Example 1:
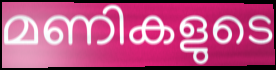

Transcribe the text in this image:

മണികളുടെ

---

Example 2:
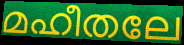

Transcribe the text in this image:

മഹീതലേ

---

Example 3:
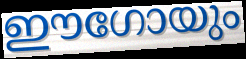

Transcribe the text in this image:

ഈഗോയും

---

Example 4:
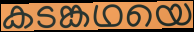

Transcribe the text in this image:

കടങ്കഥയെ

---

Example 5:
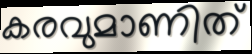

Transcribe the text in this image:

കരവുമാണിത്